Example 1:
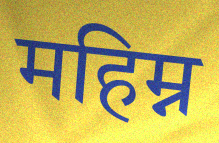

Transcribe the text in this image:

महिम्न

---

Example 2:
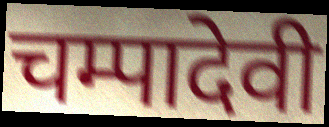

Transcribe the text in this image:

चम्पादेवी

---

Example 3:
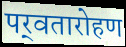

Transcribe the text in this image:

पर्वतारोहण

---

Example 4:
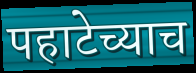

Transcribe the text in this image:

पहाटेच्याच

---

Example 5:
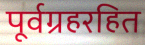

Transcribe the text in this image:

पूर्वग्रहरहित